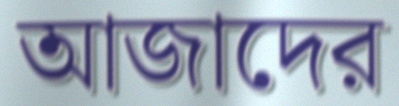
আজাদের